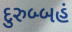
દુરુબ્બહં